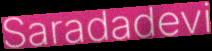
Saradadevi